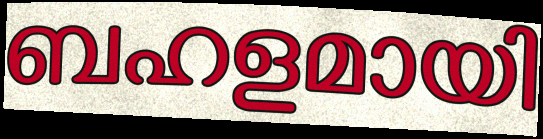
ബഹളമായി